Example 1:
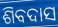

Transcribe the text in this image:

ଶିବଦାସ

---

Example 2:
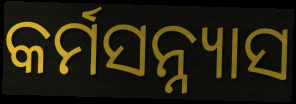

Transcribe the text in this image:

କର୍ମସନ୍ନ୍ୟାସ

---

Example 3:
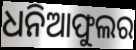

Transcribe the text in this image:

ଧନିଆଫୁଲର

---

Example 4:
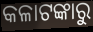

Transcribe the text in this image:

କଳାଟଙ୍କାରୁ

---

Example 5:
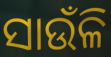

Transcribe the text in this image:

ସାଉଁଳି